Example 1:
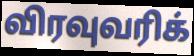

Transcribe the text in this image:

விரவுவரிக்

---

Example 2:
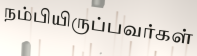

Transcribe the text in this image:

நம்பியிருப்பவர்கள்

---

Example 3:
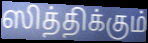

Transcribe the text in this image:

ஸித்திக்கும்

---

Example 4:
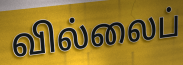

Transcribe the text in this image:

வில்லைப்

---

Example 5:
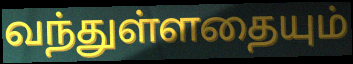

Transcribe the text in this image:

வந்துள்ளதையும்